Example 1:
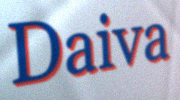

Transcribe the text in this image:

Daiva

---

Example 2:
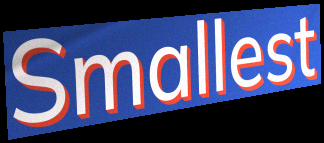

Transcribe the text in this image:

Smallest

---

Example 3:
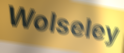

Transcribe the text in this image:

Wolseley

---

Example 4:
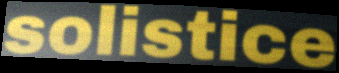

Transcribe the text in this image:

solistice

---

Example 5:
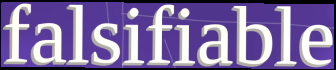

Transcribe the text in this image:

falsifiable